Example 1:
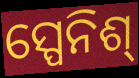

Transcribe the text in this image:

ସ୍ପେନିଶ୍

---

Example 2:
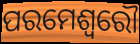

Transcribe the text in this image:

ପରମେଶ୍ଵରୌ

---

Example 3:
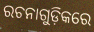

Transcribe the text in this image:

ରଚନାଗୁଡ଼ିକରେ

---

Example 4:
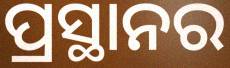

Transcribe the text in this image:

ପ୍ରସ୍ଥାନର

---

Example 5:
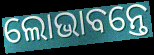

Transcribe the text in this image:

ଲୋଭାବନ୍ତେ